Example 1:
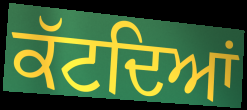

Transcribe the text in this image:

ਕੱਟਦਿਆਂ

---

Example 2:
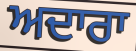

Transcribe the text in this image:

ਅਦਾਰਾ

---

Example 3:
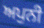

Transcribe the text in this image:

ਅਪੁਨੀ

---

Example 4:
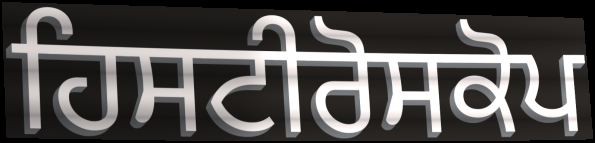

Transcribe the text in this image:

ਹਿਸਟੀਰੋਸਕੋਪ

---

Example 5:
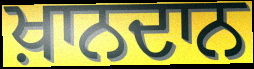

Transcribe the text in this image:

ਖ਼ਾਨਦਾਨ